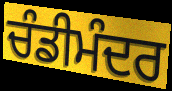
ਚੰਡੀਮੰਦਰ